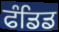
ਫੰਡਿਡ